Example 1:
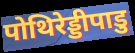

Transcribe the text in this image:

पोथिरेड्डीपाडु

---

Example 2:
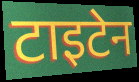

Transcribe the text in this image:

टाइटेन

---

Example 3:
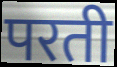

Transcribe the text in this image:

परती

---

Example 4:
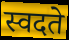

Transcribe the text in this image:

स्वदते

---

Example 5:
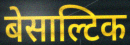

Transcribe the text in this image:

बेसाल्टिक